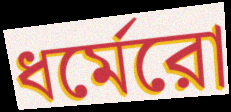
ধর্মেরো